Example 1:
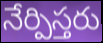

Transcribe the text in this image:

నేర్పిస్తరు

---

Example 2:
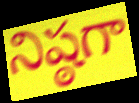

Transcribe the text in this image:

నిష్ఠగా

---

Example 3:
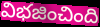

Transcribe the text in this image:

విభజించింది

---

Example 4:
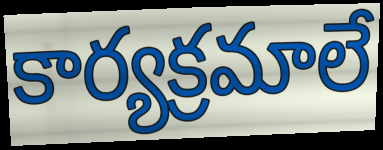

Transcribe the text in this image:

కార్యక్రమాలే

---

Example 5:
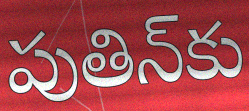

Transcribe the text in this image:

పుతిన్‌కు